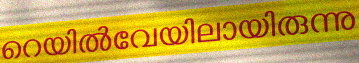
റെയിൽവേയിലായിരുന്നു